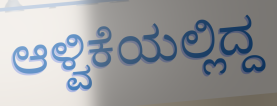
ಆಳ್ವಿಕೆಯಲ್ಲಿದ್ದ